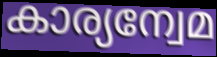
കാര്യന്വേമ